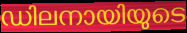
ഡിലനായിയുടെ